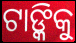
ଟାଙ୍କିକୁ